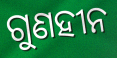
ଗୁଣହୀନ